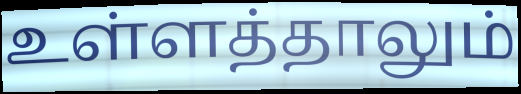
உள்ளத்தாலும்